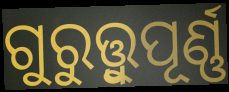
ଗୁରୁତ୍ତ୍ୱୁପୂର୍ଣ୍ଣ